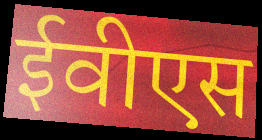
ईवीएस